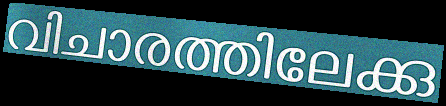
വിചാരത്തിലേക്കു